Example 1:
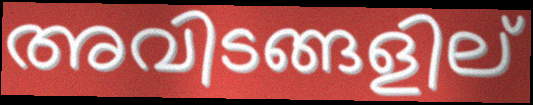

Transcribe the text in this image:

അവിടങ്ങളില്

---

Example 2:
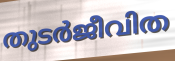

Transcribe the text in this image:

തുടർജീവിത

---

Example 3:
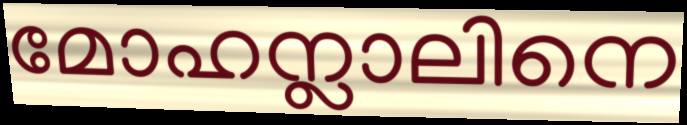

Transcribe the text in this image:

മോഹന്ലാലിനെ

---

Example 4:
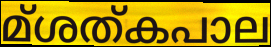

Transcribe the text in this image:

മ്ശത്കപാല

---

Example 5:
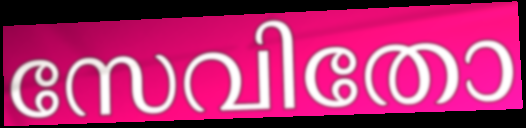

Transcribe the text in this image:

സേവിതോ